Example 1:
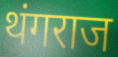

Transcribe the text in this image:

थंगराज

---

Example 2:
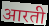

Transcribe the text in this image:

आरती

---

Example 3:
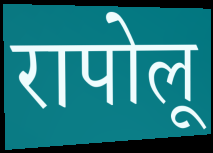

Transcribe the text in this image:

रापोलू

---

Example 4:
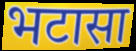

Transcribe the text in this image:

भटासा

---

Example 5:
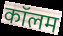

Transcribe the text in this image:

कॉलम